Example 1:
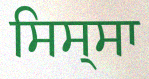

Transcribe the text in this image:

ਸਿਸ੍ਸਾ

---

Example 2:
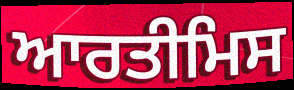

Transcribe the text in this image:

ਆਰਤੀਮਿਸ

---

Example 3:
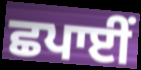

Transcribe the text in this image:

ਛਪਾਈਂ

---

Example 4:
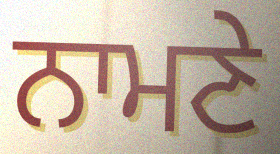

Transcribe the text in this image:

ਨਾਮਣੇ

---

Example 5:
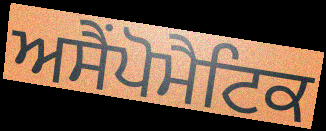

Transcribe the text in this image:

ਅਸੈਂਪੋਮੈਟਿਕ